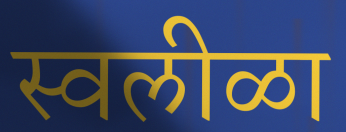
स्वलीळा